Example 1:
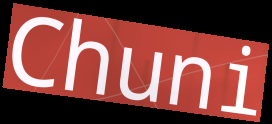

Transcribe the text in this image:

Chuni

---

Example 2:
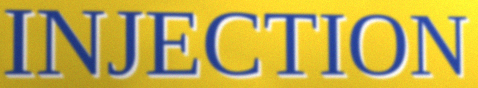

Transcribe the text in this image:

INJECTION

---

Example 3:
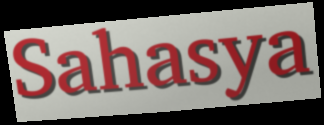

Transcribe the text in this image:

Sahasya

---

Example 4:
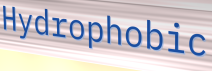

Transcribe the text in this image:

Hydrophobic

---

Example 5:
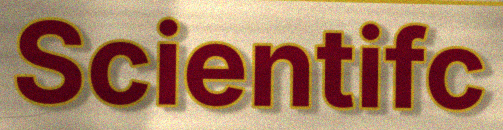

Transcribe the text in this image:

Scientifc